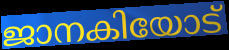
ജാനകിയോട്